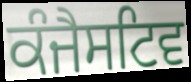
ਕੰਜੈਸਟਿਵ